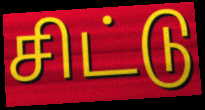
சிட்டு